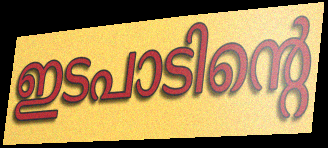
ഇടപാടിന്റെ